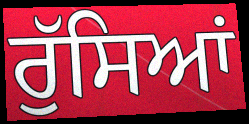
ਰੁੱਸਿਆਂ